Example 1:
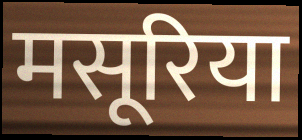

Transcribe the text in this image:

मसूरिया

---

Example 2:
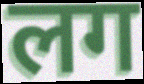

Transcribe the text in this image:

लग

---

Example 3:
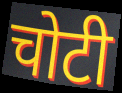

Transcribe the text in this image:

चोटी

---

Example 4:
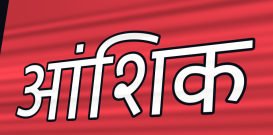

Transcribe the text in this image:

आंशिक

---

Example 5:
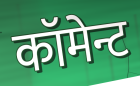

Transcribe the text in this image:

कॉमेन्ट